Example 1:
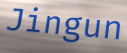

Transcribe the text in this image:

Jingun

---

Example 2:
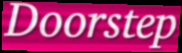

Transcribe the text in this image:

Doorstep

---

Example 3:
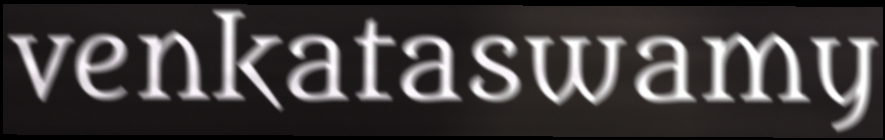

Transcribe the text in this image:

venkataswamy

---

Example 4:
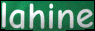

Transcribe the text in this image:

lahine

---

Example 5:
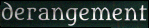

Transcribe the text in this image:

derangement